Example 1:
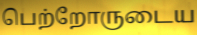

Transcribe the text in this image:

பெற்றோருடைய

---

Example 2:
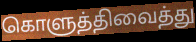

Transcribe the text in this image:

கொளுத்திவைத்து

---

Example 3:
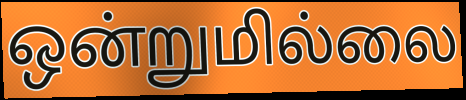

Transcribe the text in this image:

ஒன்றுமில்லை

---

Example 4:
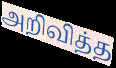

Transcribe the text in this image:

அறிவித்த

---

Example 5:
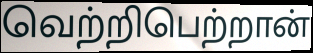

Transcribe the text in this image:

வெற்றிபெற்றான்